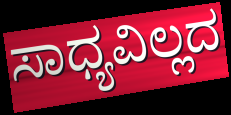
ಸಾಧ್ಯವಿಲ್ಲದ